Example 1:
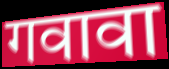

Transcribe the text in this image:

गवावा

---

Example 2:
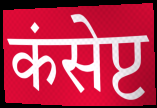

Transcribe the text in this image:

कंसेप्ट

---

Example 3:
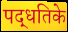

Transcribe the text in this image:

पद्धतिके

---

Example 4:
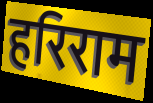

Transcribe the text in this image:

हरिराम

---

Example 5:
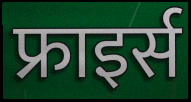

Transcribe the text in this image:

फ्राइर्स